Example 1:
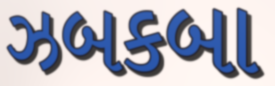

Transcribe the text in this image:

ઝબકબા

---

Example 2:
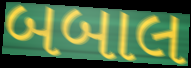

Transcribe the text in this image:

બબાલ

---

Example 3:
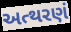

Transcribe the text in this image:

અત્થરણં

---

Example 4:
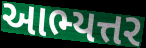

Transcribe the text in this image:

આભ્યત્તર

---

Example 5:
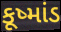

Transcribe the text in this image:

કૂષ્માંડ